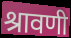
श्रावणी